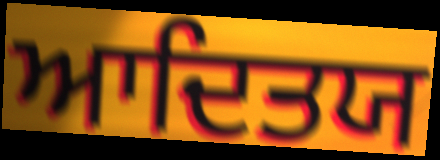
ਆਦਿਤਯ